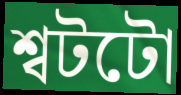
শ্বটটো